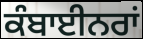
ਕੰਬਾਈਨਰਾਂ